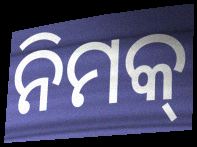
ନିମକ୍